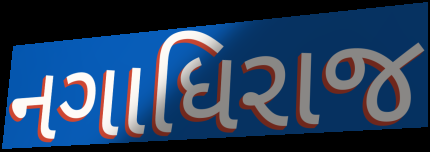
નગાધિરાજ